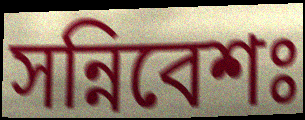
সন্নিবেশঃ